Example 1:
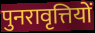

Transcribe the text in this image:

पुनरावृत्तियों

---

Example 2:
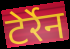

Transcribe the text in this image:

टेर्रेन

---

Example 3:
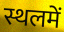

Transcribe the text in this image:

स्थलमें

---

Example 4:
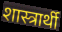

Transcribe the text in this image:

शास्त्रार्थी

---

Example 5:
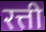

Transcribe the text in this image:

रत्ती